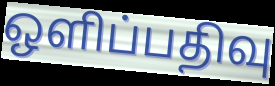
ஒளிப்பதிவு